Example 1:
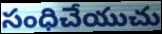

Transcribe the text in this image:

సంధిచేయుచు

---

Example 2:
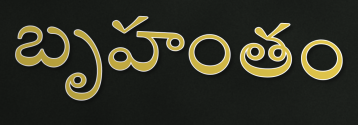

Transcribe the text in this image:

బృహంతం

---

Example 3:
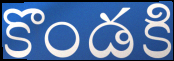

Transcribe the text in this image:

కొండకి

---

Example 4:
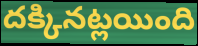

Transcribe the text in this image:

దక్కినట్లయింది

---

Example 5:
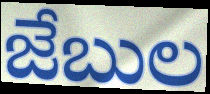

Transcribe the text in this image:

జేబుల